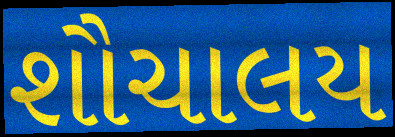
શૌચાલય